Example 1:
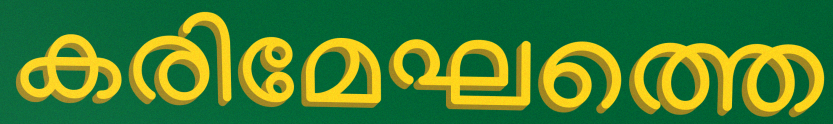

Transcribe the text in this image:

കരിമേഘത്തെ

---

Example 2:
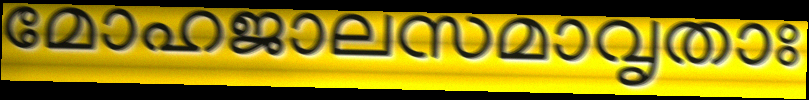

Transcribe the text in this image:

മോഹജാലസമാവൃതാഃ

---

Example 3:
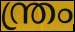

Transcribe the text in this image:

ന്ത്രം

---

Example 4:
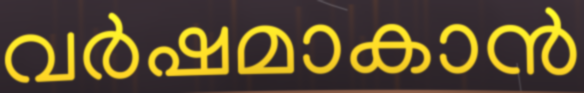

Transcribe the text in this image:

വർഷമാകാൻ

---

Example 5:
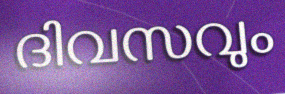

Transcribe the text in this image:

ദിവസവും